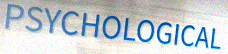
PSYCHOLOGICAL